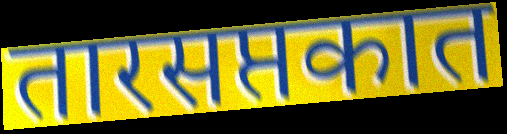
तारसप्तकात